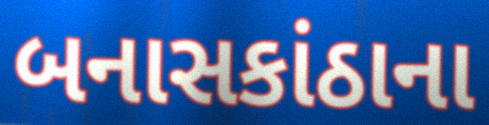
બનાસકાંઠાના